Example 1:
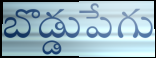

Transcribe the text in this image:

బొడ్డుపేగు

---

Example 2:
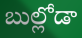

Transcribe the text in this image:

బుల్లోడా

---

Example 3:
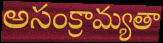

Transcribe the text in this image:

అసంక్రామ్యతా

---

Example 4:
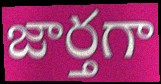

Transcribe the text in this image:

జార్తగా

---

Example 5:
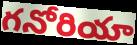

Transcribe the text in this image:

గనోరియా